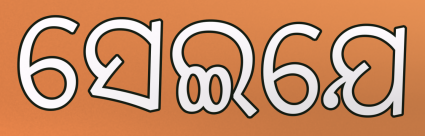
ସେଇଯେ